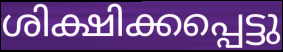
ശിക്ഷിക്കപ്പെട്ടു